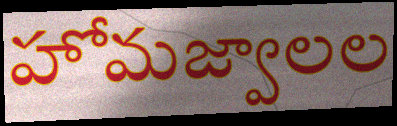
హోమజ్వాలల